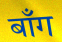
बाँग